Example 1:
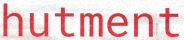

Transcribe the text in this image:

hutment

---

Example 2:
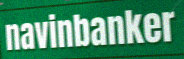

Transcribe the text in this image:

navinbanker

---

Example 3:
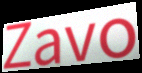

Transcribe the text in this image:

Zavo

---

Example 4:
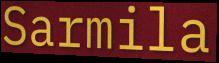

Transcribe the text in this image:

Sarmila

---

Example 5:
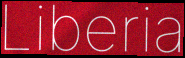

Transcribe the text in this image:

Liberia